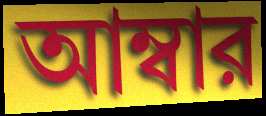
আম্বার